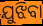
ଯୁଝିବା